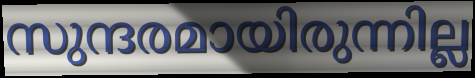
സുന്ദരമായിരുന്നില്ല